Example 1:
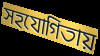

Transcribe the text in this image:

সহযোগিতায়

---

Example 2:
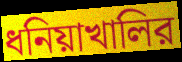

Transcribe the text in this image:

ধনিয়াখালির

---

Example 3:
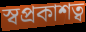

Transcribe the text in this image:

স্বপ্রকাশত্ব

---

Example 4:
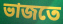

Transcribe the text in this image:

ভাজতে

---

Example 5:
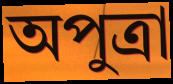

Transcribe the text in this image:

অপুত্রা